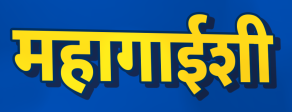
महागाईशी